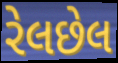
રેલછેલ